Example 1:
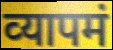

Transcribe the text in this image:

व्‍यापमं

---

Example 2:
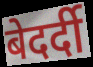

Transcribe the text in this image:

बेदर्दी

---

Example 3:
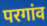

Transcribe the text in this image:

परगांव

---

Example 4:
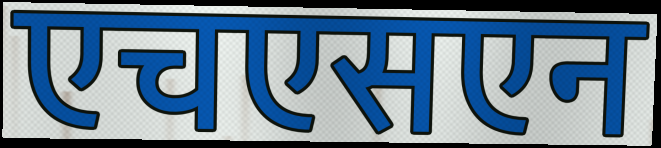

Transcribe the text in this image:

एचएसएन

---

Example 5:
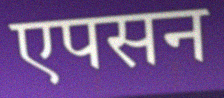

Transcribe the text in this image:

एपसन